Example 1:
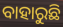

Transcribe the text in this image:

ବାହାରୁଛି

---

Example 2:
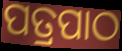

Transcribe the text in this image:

ପତ୍ରପାଠ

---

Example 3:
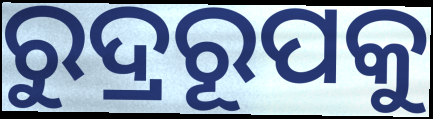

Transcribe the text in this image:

ରୁଦ୍ରରୂପକୁ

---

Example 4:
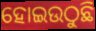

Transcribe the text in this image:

ହୋଇଉଠୁଛି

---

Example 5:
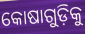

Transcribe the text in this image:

କୋଷାଗୁଡ଼ିକୁ